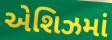
એશિઝમાં